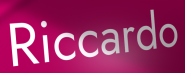
Riccardo